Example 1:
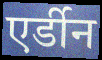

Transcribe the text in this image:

एर्डीन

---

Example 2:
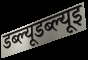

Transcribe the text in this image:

डब्ल्यूडब्ल्यूइ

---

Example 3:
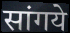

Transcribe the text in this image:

सांगये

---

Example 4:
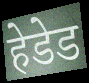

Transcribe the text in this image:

हेडेड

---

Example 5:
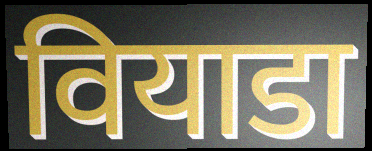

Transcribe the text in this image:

वियाडा